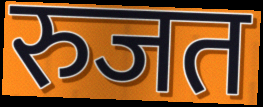
रुजत